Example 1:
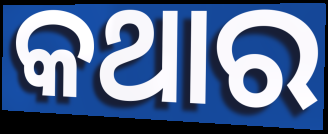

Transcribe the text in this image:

କଥାର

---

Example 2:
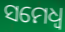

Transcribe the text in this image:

ସମେଧ୍ୱ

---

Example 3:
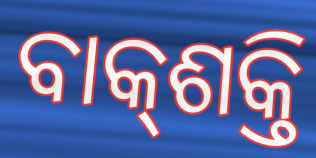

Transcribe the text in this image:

ବାକ୍‍ଶକ୍ତି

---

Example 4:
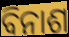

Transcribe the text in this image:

ବିନାଶ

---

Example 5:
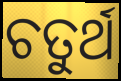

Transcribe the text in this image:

ଚତୁର୍ଥ